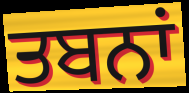
ਤਬਨਾਂ